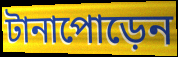
টানাপোড়েন